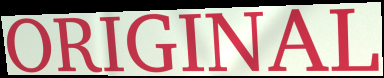
ORIGINAL